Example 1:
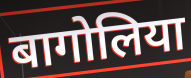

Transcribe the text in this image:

बागोलिया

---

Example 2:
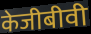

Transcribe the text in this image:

केजीबीवी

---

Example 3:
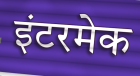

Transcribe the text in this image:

इंटरमेक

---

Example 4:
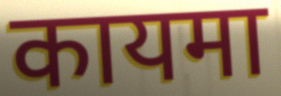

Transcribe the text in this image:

कायमा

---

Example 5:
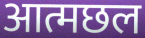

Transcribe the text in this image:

आत्मछल